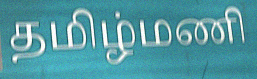
தமிழ்மணி